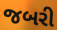
જબરી